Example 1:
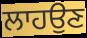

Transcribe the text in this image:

ਲਾਹਉਣ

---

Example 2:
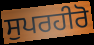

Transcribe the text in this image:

ਸੁਪਰਹੀਰੋ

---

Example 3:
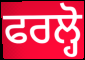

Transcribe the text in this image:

ਫਰਲ੍ਹੋ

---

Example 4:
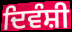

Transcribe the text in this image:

ਦਿਵੰਸ਼ੀ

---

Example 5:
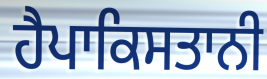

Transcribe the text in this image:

ਹੈਪਾਕਿਸਤਾਨੀ